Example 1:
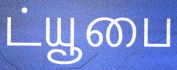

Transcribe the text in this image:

ட்யூபை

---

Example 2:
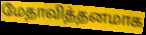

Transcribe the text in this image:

மேதாவித்தனமாக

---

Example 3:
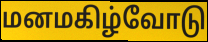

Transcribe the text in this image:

மனமகிழ்வோடு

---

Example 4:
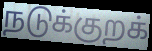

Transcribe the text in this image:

நடுக்குறக்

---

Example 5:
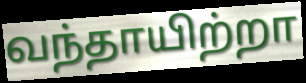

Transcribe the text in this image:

வந்தாயிற்றா